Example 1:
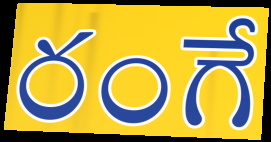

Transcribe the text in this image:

రంగే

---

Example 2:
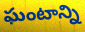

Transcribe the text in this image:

ఘంటాన్ని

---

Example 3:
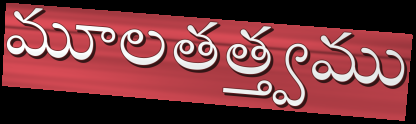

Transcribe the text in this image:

మూలతత్త్వము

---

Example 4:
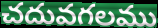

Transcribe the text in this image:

చదువగలము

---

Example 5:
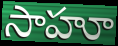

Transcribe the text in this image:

సాహూ